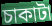
চাকাটা